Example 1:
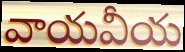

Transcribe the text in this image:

వాయవీయ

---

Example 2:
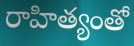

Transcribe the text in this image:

రాహిత్యంతో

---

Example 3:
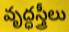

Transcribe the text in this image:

వృద్ధస్త్రీలు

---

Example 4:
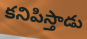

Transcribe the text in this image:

కనిపిస్తాడు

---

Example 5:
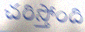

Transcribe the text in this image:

చరిస్తోంది